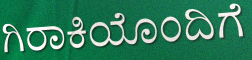
ಗಿರಾಕಿಯೊಂದಿಗೆ